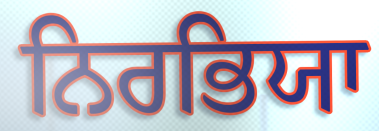
ਨਿਰਭਿਯਾ